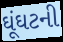
ઘૂંઘટની